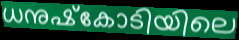
ധനുഷ്‌കോടിയിലെ